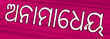
ଅନାମାଧେୟ